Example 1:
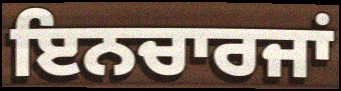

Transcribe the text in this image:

ਇਨਚਾਰਜਾਂ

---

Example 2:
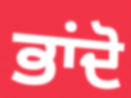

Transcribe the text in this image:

ਭਾਂਦੋ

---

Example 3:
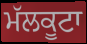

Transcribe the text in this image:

ਮੱਲਕੂਟਾ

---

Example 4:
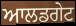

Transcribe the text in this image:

ਆਲਡਗੇਟ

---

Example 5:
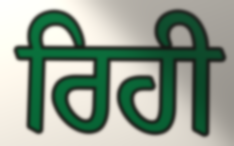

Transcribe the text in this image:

ਰਿਹੀ